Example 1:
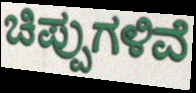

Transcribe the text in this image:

ಚಿಪ್ಪುಗಳಿವೆ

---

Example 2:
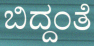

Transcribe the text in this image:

ಬಿದ್ದಂತೆ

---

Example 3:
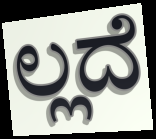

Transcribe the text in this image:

ಲ್ಲದೆ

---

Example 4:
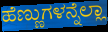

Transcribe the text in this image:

ಹೆಣ್ಣುಗಳನ್ನೆಲ್ಲಾ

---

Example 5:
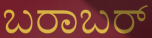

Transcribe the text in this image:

ಬರಾಬರ್